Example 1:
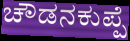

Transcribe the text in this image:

ಚೌಡನಕುಪ್ಪೆ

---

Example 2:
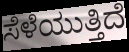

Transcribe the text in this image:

ಸೆಳೆಯುತ್ತಿದೆ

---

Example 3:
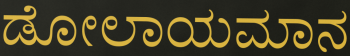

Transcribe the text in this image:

ಡೋಲಾಯಮಾನ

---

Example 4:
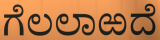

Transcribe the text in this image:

ಗೆಲಲಾಱದೆ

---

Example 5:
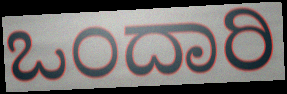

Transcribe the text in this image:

ಒಂದಾರಿ